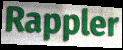
Rappler